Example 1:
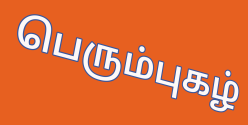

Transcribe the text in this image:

பெரும்புகழ்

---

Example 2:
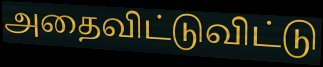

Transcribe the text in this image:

அதைவிட்டுவிட்டு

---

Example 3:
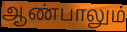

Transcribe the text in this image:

ஆண்பாலும்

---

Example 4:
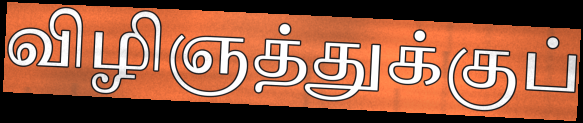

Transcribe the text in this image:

விழிஞத்துக்குப்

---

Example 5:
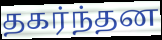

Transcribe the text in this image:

தகர்ந்தன